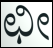
ಛೀ